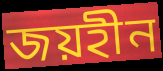
জয়হীন